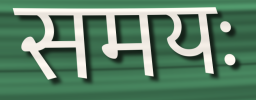
समयः